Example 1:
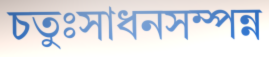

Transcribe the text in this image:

চতুঃসাধনসম্পন্ন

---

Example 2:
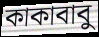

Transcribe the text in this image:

কাকাবাবু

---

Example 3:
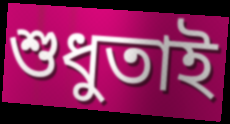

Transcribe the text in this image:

শুধুতাই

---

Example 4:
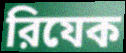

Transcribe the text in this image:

রিযেক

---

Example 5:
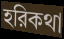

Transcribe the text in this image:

হরিকথা